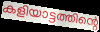
കളിയാട്ടത്തിന്റെ